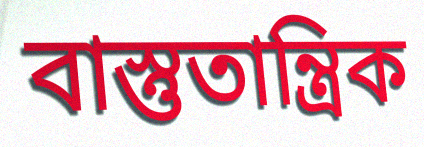
বাস্তুতান্ত্রিক